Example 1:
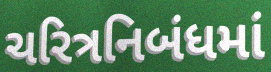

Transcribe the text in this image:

ચરિત્રનિબંધમાં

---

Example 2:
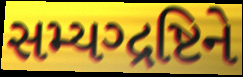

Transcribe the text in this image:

સમ્યગ્દ્રષ્ટિને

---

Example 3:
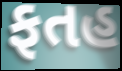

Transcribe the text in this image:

ફતહ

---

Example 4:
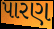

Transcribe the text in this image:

પારણ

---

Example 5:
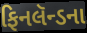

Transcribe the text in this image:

ફિનલૅન્ડના